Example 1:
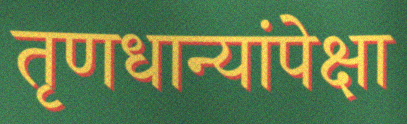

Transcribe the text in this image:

तृणधान्यांपेक्षा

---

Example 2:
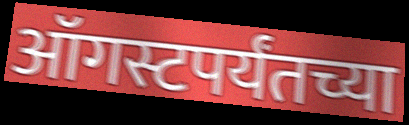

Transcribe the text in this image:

ऑगस्टपर्यंतच्या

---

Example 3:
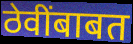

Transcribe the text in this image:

ठेवींबाबत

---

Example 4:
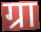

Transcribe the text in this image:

ग्रा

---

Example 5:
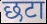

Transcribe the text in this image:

छटा